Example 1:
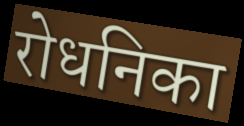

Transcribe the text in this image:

रोधनिका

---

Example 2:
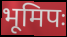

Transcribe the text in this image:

भूमिपः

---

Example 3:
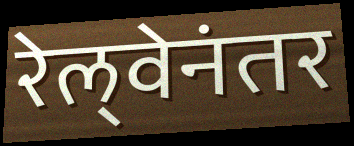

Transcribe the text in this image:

रेल्वेनंतर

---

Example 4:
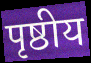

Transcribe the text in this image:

पृष्ठीय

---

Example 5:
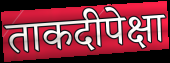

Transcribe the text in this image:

ताकदीपेक्षा